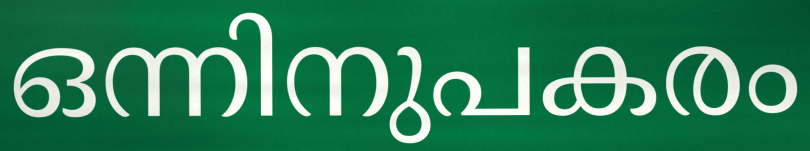
ഒന്നിനുപകരം